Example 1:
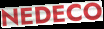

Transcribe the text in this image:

NEDECO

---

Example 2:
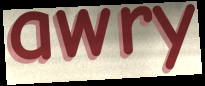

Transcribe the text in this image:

awry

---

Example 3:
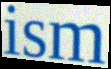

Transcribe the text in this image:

ism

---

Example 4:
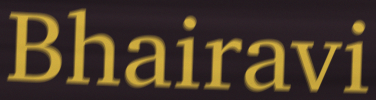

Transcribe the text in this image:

Bhairavi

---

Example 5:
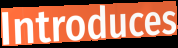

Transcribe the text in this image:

Introduces